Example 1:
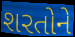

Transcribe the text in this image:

શરતોને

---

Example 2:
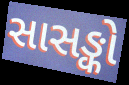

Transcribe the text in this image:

સાસઙ્કો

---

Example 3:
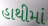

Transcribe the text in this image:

હાથીમાં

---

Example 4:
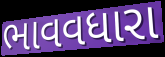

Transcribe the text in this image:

ભાવવધારા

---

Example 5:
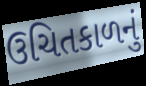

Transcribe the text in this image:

ઉચિતકાળનું